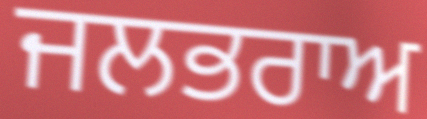
ਜਲਭਰਾਅ